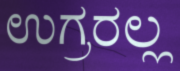
ಉಗ್ರರಲ್ಲ